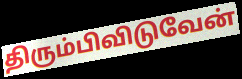
திரும்பிவிடுவேன்